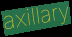
axillary